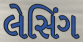
લેસિંગ